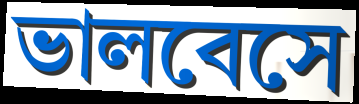
ভালবেসে